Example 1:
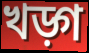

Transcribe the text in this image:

খড়্গ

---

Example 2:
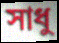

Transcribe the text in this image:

সাধু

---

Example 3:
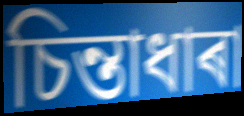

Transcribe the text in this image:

চিন্তাধাৰা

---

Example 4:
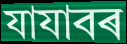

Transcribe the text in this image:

যাযাবৰ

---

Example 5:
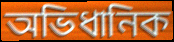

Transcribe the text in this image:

অভিধানিক